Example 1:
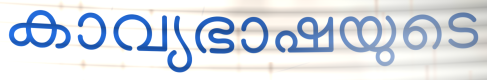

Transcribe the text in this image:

കാവ്യഭാഷയുടെ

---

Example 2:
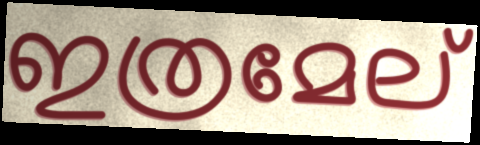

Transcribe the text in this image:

ഇത്രമേല്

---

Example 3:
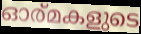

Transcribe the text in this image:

ഓര്മകളുടെ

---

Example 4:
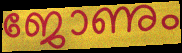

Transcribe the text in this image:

ജോണും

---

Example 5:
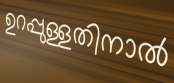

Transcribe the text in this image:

ഉറപ്പുള്ളതിനാൽ